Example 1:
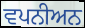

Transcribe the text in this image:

ਵਪਨੀਅਨ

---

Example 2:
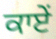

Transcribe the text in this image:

ਕਾਏਂ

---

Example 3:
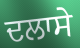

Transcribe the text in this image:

ਦਲਾਸੇ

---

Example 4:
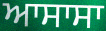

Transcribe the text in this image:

ਆਸਾਸਾ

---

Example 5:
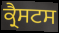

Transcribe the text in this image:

ਕ੍ਰੈਸਟਸ